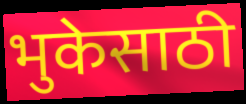
भुकेसाठी